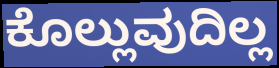
ಕೊಲ್ಲುವುದಿಲ್ಲ